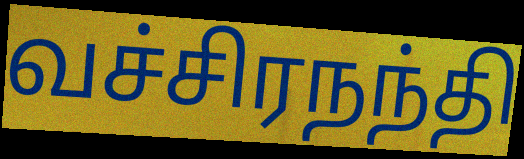
வச்சிரநந்தி